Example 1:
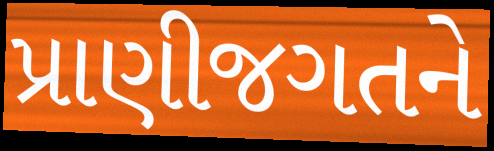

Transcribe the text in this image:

પ્રાણીજગતને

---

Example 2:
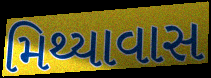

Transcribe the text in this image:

મિથ્યાવાસ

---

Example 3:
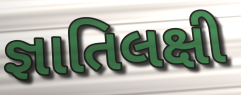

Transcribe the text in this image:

જ્ઞાતિલક્ષી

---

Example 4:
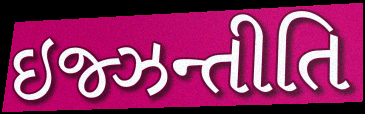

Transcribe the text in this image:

ઇજ્ઝન્તીતિ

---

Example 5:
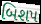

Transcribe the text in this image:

બિશપ